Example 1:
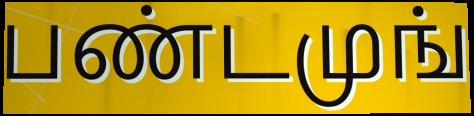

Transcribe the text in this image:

பண்டமுங்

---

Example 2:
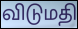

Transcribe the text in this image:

விடுமதி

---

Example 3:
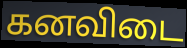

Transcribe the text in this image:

கனவிடை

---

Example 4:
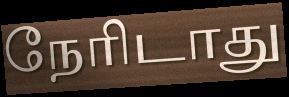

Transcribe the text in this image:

நேரிடாது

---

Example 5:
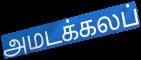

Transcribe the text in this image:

அமடக்கலப்